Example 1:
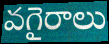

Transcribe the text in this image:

వగైరాలు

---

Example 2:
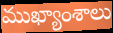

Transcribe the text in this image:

ముఖ్యాంశాలు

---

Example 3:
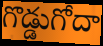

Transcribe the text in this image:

గొడ్డుగోదా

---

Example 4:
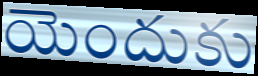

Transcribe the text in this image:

యెందుకు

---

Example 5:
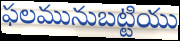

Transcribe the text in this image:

ఫలమునుబట్టియు